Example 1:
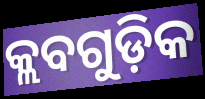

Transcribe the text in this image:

କ୍ଲବଗୁଡ଼ିକ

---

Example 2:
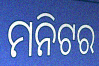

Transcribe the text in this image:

ମନିଟର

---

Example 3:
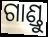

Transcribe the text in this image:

ଗାଣ୍ଡୁ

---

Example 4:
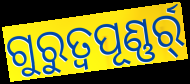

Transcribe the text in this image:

ଗୁରୁତ୍ୱପୂଣ୍ଣର୍ର୍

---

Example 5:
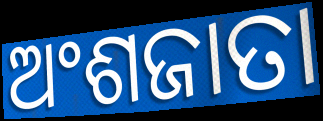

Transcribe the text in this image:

ଅଂଶଜାତା